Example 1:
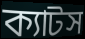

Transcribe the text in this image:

ক্যাটস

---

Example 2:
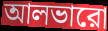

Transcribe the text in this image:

আলভারো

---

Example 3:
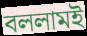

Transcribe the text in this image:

বললামই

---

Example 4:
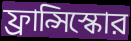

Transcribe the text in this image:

ফ্রান্সিস্কোর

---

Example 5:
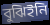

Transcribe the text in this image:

বুঝিইনি